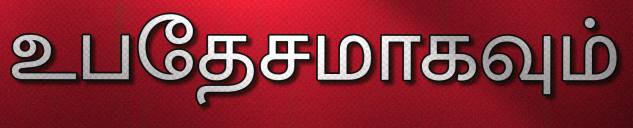
உபதேசமாகவும்